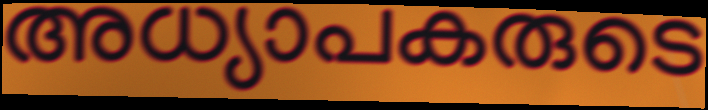
അധ്യാപകരുടെ